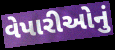
વેપારીઓનું